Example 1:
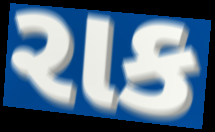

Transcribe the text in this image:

રાક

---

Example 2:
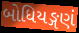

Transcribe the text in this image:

બોધિયઙ્ગણં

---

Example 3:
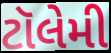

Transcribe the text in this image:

ટૉલેમી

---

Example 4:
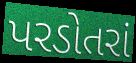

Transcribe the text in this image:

પરડોતરાં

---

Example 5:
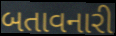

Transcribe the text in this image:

બતાવનારી